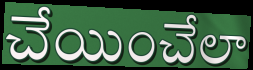
చేయించేలా